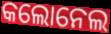
କଲୋନେଲ